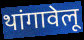
थांगावेलू